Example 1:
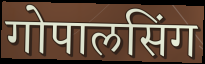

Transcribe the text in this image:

गोपालसिंग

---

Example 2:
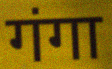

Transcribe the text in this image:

गंगा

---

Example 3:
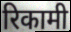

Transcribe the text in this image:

रिकामी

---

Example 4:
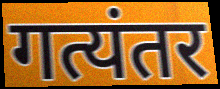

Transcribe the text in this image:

गत्यंतर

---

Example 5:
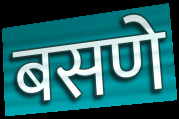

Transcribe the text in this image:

बसणे